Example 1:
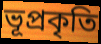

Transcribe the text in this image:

ভূপ্রকৃতি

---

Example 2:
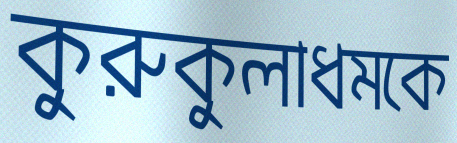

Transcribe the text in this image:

কুরুকুলাধমকে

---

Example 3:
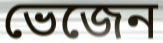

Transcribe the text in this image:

ভেজেন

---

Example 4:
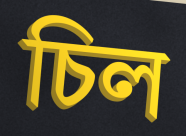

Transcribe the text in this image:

চিল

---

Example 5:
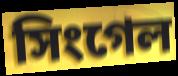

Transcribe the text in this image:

সিংগেল